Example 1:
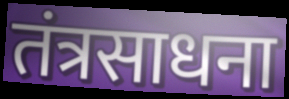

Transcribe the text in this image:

तंत्रसाधना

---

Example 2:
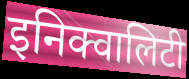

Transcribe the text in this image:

इनिक्वालिटी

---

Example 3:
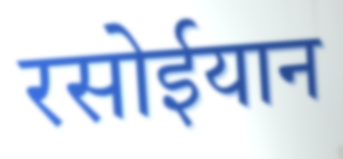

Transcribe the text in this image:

रसोईयान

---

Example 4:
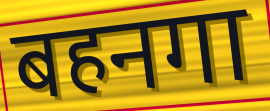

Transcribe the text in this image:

बहनगा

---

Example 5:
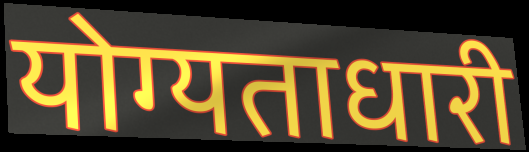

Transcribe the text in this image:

योग्यताधारी